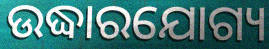
ଉଦ୍ଧାରଯୋଗ୍ୟ